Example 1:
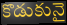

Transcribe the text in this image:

కొడుకునై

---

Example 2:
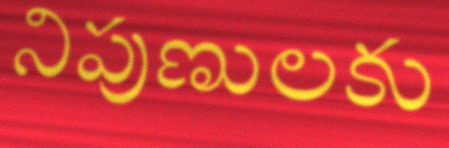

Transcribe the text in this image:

నిపుణులకు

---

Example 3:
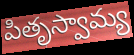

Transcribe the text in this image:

పితృస్వామ్య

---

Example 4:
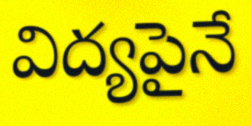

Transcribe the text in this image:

విద్యపైనే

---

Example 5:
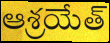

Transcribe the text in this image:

ఆశ్రయేత్